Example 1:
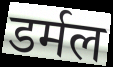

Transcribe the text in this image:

डर्मल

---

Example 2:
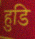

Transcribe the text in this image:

हुडि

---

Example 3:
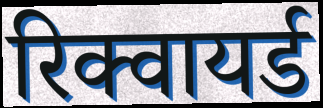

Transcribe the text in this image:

रिक्वायर्ड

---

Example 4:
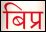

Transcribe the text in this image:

बिप्र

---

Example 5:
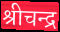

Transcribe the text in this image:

श्रीचन्द्र